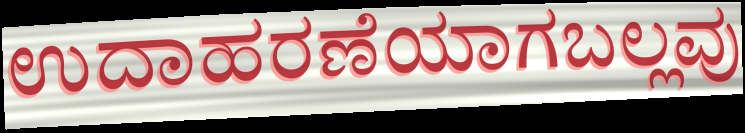
ಉದಾಹರಣೆಯಾಗಬಲ್ಲವು